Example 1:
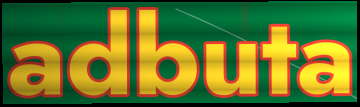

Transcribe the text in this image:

adbuta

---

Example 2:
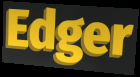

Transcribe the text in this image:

Edger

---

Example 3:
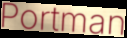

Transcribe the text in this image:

Portman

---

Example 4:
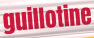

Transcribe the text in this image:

guillotine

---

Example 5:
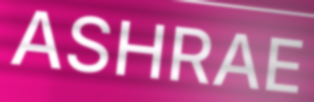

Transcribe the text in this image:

ASHRAE